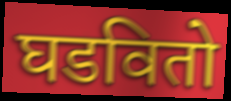
घडवितो